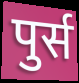
पुर्स